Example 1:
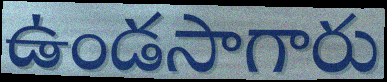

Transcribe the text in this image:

ఉండసాగారు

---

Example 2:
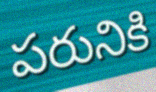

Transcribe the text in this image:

పరునికి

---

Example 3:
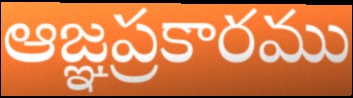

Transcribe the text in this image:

ఆజ్ఞప్రకారము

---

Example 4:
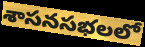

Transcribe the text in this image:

శాసనసభలలో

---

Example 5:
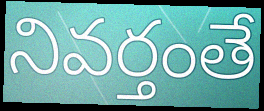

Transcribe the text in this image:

నివర్తంతే